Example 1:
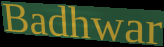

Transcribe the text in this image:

Badhwar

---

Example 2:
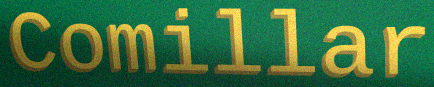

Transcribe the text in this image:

Comillar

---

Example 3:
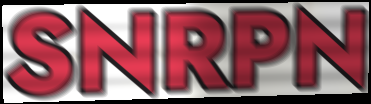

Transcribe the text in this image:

SNRPN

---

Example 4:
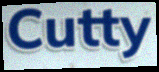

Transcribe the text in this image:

Cutty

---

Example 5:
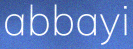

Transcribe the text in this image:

abbayi